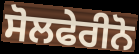
ਸੋਲਫੇਰੀਨੋ